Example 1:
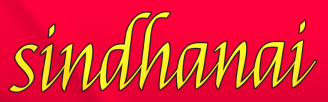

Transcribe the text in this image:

sindhanai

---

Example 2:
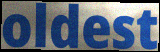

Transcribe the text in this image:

oldest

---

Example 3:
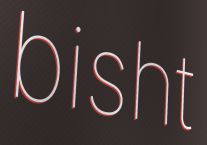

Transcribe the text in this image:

bisht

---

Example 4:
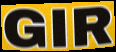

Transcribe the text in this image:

GIR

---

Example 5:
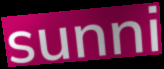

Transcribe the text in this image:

sunni